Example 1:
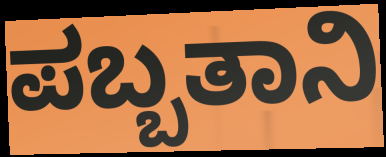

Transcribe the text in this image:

ಪಬ್ಬತಾನಿ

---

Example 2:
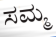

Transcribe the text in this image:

ಸಮ್ಮ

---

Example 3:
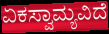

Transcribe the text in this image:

ಏಕಸ್ವಾಮ್ಯವಿದೆ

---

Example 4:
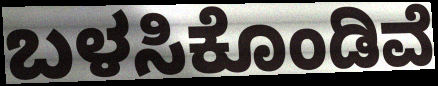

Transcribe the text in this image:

ಬಳಸಿಕೊಂಡಿವೆ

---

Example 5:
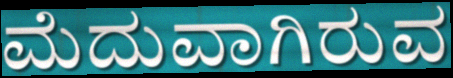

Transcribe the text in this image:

ಮೆದುವಾಗಿರುವ